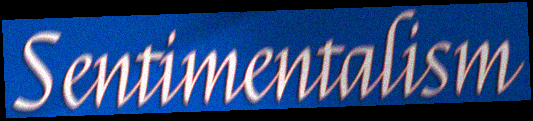
Sentimentalism